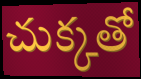
చుక్కతో